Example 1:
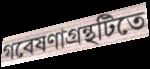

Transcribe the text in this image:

গবেষণাগ্রন্থটিতে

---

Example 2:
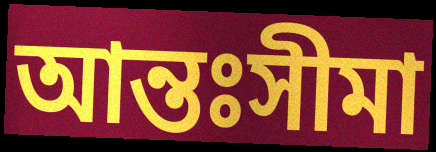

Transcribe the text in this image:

আন্তঃসীমা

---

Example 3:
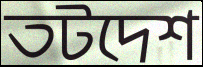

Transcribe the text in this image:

তটদেশ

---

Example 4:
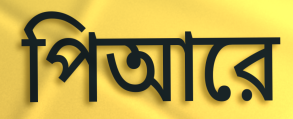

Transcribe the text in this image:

পিআরে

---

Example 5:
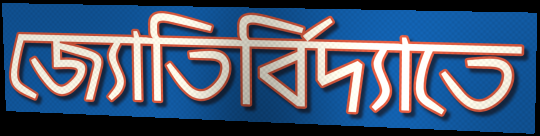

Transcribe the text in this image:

জ্যোতির্বিদ্যাতে